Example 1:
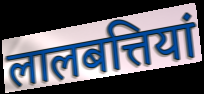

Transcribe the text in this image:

लालबत्तियां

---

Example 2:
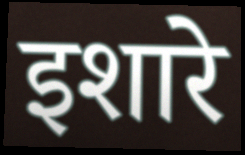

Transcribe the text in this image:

इशारे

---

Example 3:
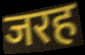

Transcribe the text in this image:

जरह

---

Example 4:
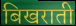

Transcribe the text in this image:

बिखराती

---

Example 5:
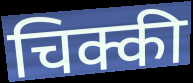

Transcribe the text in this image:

चिक्की